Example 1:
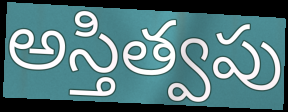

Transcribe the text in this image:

అస్తిత్వపు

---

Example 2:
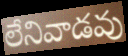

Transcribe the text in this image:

లేనివాడవు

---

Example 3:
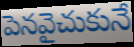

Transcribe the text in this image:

పెనవైచుకునే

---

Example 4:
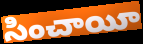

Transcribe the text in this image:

సించాయీ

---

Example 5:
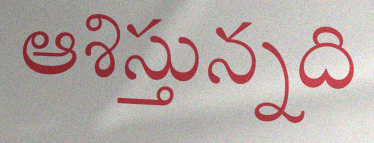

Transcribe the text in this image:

ఆశిస్తున్నది